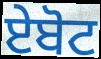
ਏਬੋਟ